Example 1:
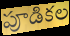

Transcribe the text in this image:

పూడికల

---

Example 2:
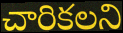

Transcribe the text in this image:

చారికలని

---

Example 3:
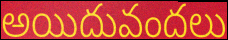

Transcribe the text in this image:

అయిదువందలు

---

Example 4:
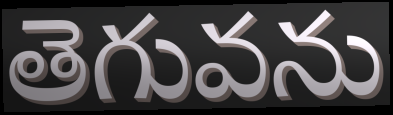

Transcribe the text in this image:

తెగువను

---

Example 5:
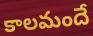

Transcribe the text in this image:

కాలమందే